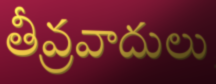
తీవ్రవాదులు